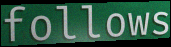
follows